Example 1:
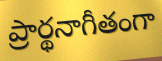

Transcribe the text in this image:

ప్రార్థనాగీతంగా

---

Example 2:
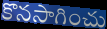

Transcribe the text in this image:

కొనసాగించు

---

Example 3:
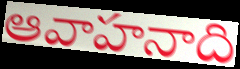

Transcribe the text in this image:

ఆవాహనాది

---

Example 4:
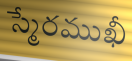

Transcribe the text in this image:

స్మేరముఖీ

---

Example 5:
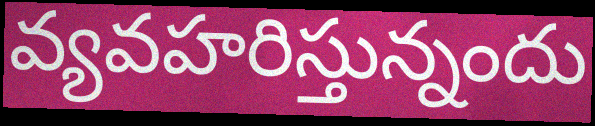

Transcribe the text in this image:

వ్యవహరిస్తున్నందు